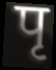
पृ